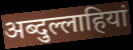
अब्दुल्लाहियां